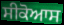
ਸੀਕੋਆਸ